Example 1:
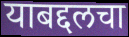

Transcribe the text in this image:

याबद्दलचा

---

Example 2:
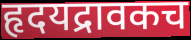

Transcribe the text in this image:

हृदयद्रावकच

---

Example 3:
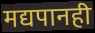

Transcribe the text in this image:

मद्यपानही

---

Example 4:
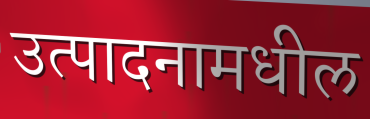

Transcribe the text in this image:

उत्पादनामधील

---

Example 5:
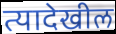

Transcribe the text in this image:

त्यादेखील